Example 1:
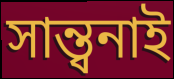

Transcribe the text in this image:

সান্ত্বনাই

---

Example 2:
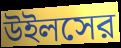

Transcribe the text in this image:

উইলসের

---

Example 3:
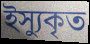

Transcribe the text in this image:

ইস্যুকৃত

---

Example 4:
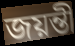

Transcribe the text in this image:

জয়ন্তী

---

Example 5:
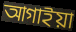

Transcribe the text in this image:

আগাইয়া